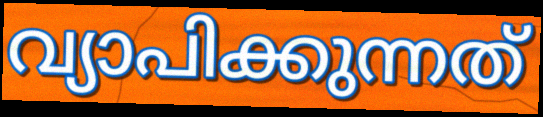
വ്യാപിക്കുന്നത്